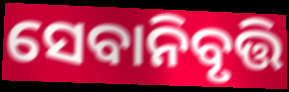
ସେବାନିବୃତ୍ତି